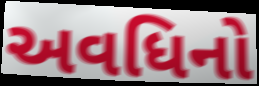
અવધિનો